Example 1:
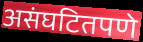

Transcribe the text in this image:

असंघटितपणे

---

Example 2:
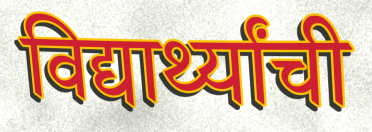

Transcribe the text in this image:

विद्यार्थ्यांची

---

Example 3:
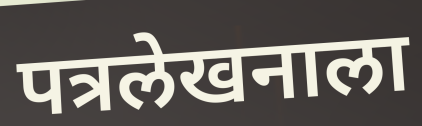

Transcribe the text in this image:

पत्रलेखनाला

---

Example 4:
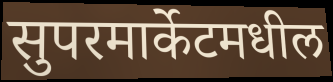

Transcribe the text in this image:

सुपरमार्केटमधील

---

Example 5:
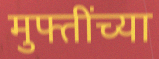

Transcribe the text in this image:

मुफ्तींच्या